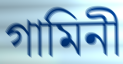
গামিনী